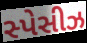
સ્પેસીઝ